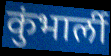
कुंभार्ली